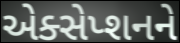
એક્સેપ્શનને